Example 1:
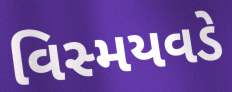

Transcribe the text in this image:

વિસ્મયવડે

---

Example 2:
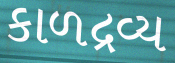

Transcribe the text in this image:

કાળદ્રવ્ય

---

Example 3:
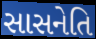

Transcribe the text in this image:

સાસનેતિ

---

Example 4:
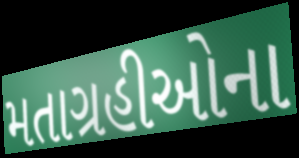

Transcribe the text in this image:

મતાગ્રહીઓના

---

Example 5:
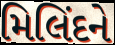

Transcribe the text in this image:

મિલિંદને